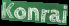
Konrai